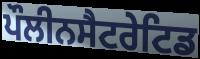
ਪੌਲੀਨਸੈਟਰੇਟਿਡ